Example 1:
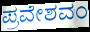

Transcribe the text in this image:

ಪ್ರವೇಶವಂ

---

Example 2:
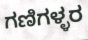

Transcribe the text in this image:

ಗಣಿಗಳ್ಳರ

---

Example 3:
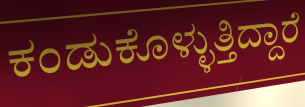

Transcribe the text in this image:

ಕಂಡುಕೊಳ್ಳುತ್ತಿದ್ದಾರೆ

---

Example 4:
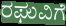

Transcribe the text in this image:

ರಘುವಿಗೆ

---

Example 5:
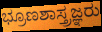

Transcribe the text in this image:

ಭ್ರೂಣಶಾಸ್ತ್ರಜ್ಞರು